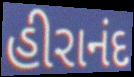
હીરાનંદ